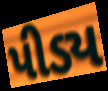
પીડ્ય